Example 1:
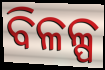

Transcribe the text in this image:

ବିଳଳ୍ପ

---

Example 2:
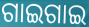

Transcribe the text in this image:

ଗାଇଗାଇ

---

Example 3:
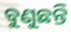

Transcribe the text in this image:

ବୁଣୁଛନ୍ତି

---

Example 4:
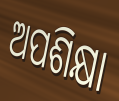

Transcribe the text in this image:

ଅପଶିକ୍ଷା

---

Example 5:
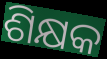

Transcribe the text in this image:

ଶିକ୍ଷକ